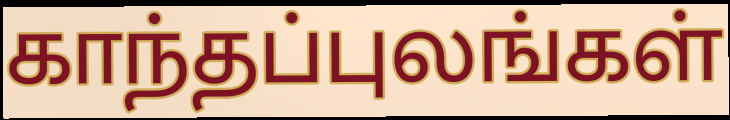
காந்தப்புலங்கள்